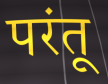
परंतू